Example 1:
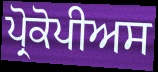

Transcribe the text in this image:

ਪ੍ਰੋਕੋਪੀਅਸ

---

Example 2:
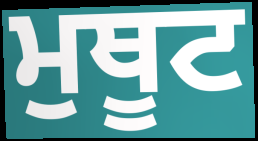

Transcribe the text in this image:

ਮੁਥੂਟ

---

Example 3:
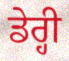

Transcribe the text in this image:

ਡੇਰ੍ਹੀ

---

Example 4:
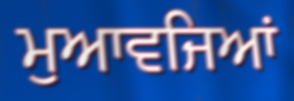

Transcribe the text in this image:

ਮੁਆਵਜਿਆਂ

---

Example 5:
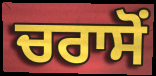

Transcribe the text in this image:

ਚਰਾਸੋਂ